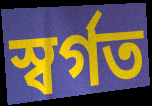
স্বৰ্গত